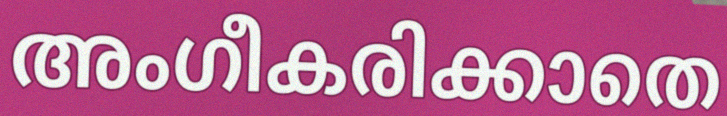
അംഗീകരിക്കാതെ